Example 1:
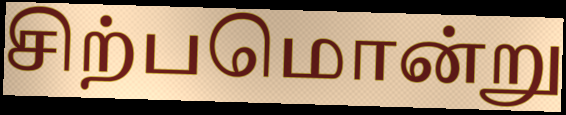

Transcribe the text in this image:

சிற்பமொன்று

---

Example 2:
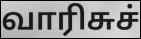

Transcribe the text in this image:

வாரிசுச்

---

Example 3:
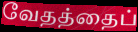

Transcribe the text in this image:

வேதத்தைப்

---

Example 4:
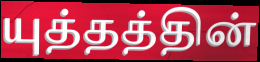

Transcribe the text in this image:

யுத்தத்தின்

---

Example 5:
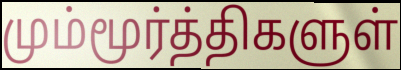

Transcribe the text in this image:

மும்மூர்த்திகளுள்